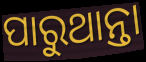
ପାରୁଥାନ୍ତା